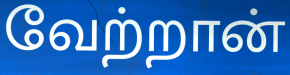
வேற்றான்